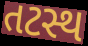
તટસ્થ